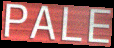
PALE